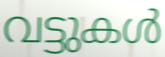
വട്ടുകൾ